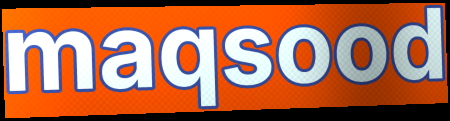
maqsood